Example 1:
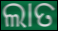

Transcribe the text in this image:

ଲାତ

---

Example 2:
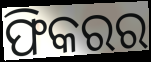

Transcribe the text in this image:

ଫିକରର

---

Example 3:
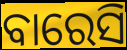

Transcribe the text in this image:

ବାରେସି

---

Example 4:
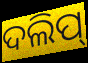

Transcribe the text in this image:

ଦଲିପ୍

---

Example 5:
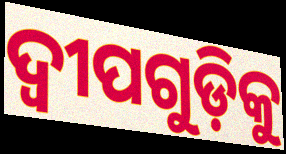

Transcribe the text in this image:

ଦ୍ୱୀପଗୁଡ଼ିକୁ